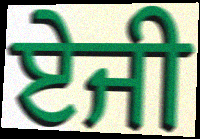
ਏਜੀ